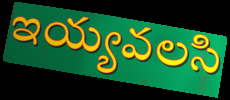
ఇయ్యవలసి